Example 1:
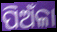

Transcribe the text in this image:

ପିଅଁଳା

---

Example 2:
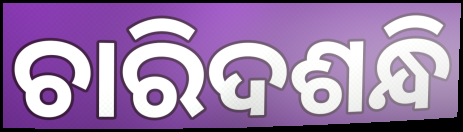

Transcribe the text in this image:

ଚାରିଦଶନ୍ଧି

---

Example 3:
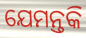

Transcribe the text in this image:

ଯେମନ୍ତକି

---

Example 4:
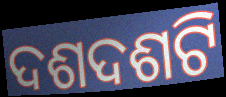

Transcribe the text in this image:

ଦଶଦଶଟି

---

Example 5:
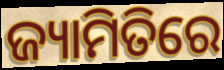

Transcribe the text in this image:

ଜ୍ୟାମିତିରେ